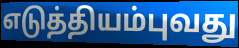
எடுத்தியம்புவது